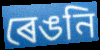
ৰেঙনি